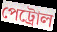
পেট্রোল